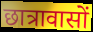
छात्रावासों